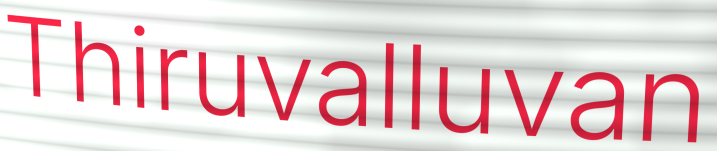
Thiruvalluvan